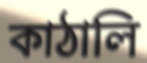
কাঠালি